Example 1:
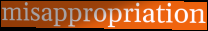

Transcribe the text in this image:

misappropriation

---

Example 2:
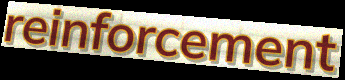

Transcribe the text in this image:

reinforcement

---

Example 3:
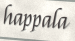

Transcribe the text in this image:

happala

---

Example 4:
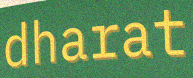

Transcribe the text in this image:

dharat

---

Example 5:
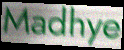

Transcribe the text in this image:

Madhye